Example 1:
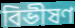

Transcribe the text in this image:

বিভীষণ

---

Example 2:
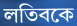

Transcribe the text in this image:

লতিবকে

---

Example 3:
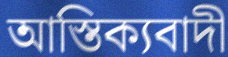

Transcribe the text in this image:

আস্তিক্যবাদী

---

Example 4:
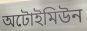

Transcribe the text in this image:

অটোইমিউন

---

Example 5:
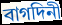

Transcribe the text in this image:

বাগদিনী